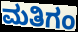
ಮತಿಗಂ